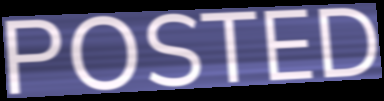
POSTED